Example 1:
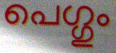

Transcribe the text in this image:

പെഗ്ഗും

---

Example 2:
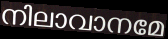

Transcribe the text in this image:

നിലാവാനമേ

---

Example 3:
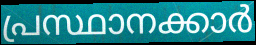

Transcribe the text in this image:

പ്രസ്ഥാനക്കാർ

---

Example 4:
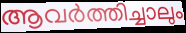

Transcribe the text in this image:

ആവർത്തിച്ചാലും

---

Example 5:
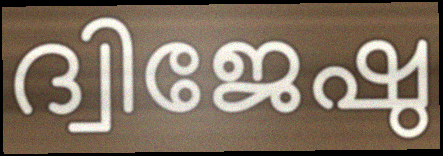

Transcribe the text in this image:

ദ്വിജേഷു